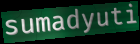
sumadyuti